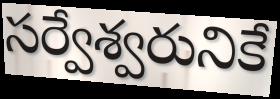
సర్వేశ్వరునికే